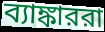
ব্যাঙ্কাররা